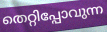
തെറ്റിപ്പോവുന്ന